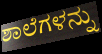
ಶಾಲೆಗಳನ್ನು